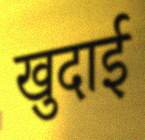
खुदाई